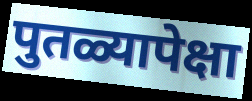
पुतळ्यापेक्षा